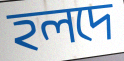
হলদে